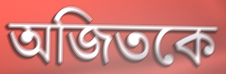
অজিতকে